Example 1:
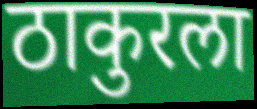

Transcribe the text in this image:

ठाकुरला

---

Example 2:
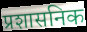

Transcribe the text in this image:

प्रशासनिक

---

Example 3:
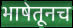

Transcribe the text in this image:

भाषेतूनच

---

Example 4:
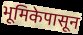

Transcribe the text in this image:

भूमिकेपासून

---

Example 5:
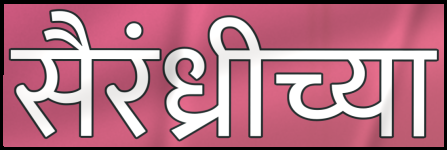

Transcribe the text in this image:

सैरंध्रीच्या